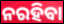
ନରହିବା